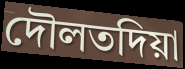
দৌলতদিয়া